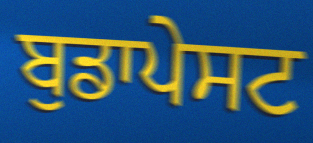
ਬੁਡਾਪੇਸਟ